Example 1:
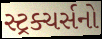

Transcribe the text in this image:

સ્ટ્રક્ચર્સનો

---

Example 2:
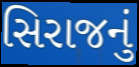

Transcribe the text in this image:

સિરાજનું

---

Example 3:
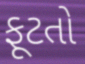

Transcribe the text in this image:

ફૂટતો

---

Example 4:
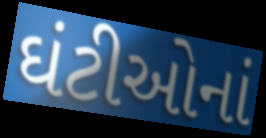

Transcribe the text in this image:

ઘંટીઓનાં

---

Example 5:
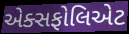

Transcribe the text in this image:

એક્સફોલિએટ